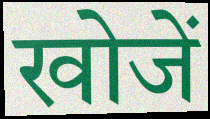
खोजें